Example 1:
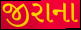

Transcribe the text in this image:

જીરાના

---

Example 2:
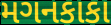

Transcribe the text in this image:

મગનકાકા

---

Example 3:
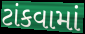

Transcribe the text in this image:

ટાંકવામાં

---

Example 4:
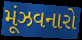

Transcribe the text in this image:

મૂંઝવનારો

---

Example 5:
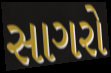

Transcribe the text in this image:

સાગરો